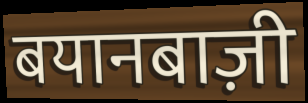
बयानबाज़ी